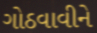
ગોઠવાવીને